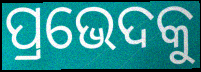
ପ୍ରଭେଦକୁ